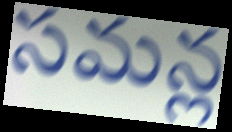
సమన్ల